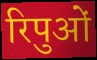
रिपुओं